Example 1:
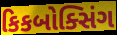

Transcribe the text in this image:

કિકબોક્સિંગ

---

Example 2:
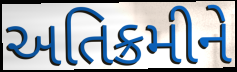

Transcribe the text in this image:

અતિક્રમીને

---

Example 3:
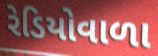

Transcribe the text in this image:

રેડિયોવાળા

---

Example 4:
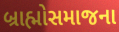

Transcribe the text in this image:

બ્રાહ્મોસમાજના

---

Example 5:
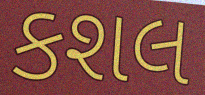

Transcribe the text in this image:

કશલ